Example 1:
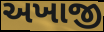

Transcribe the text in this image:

અખાજી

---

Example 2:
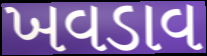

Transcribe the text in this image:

ખવડાવ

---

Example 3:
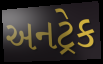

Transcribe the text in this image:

અનટ્રેક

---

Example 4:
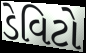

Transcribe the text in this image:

ડેવિટો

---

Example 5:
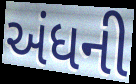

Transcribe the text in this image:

અંધની